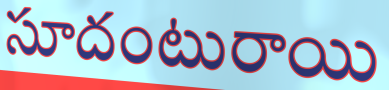
సూదంటురాయి